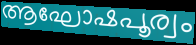
ആഘോഷപൂര്വം